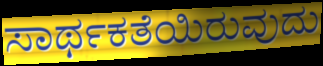
ಸಾರ್ಥಕತೆಯಿರುವುದು